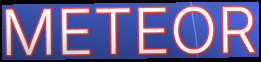
METEOR